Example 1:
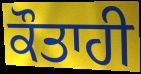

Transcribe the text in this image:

ਕੌਤਾਹੀ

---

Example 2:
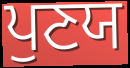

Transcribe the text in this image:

ਪੁਣਯ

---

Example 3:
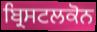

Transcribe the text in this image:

ਬ੍ਰਿਸਟਲਕੋਨ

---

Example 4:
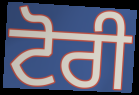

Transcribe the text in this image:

ਟੋਰੀ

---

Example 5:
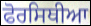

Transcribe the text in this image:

ਫੋਰਸਿਥੀਆ